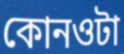
কোনওটা